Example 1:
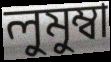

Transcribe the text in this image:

লুমুম্বা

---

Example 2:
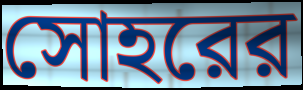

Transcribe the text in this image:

সোহরের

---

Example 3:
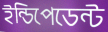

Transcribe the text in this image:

ইন্ডিপেডেন্ট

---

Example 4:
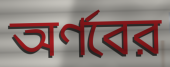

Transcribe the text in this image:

অর্ণবের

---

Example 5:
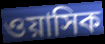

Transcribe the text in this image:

ওয়াসিক